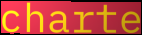
charte